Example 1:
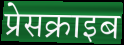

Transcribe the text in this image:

प्रेसक्राइब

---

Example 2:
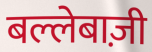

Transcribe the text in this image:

बल्‍लेबाज़ी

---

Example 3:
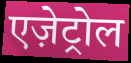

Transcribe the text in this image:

एज़ेट्रोल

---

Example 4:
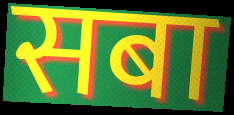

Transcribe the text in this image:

सबा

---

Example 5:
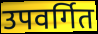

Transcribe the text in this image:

उपवर्गित